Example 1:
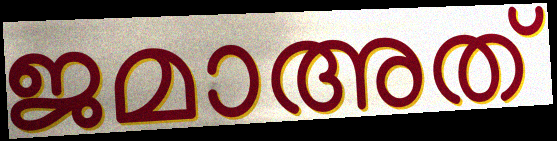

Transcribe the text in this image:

ജമാഅത്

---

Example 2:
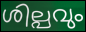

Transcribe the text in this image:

ശില്പവും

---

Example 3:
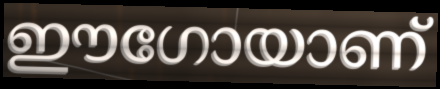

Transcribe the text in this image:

ഈഗോയാണ്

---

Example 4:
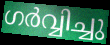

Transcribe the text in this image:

ഗർവ്വിച്ചു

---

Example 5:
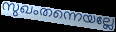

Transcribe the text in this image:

സുഖംതന്നെയല്ലേ